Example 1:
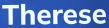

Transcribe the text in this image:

Therese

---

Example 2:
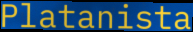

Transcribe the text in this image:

Platanista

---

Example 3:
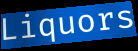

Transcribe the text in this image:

Liquors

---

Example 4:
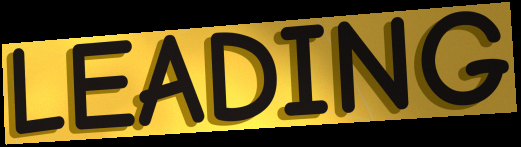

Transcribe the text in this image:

LEADING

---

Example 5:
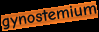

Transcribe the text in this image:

gynostemium